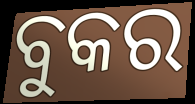
ବୁକର